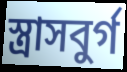
স্ত্রাসবুর্গ